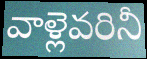
వాళ్లెవరినీ